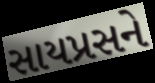
સાયપ્રસને